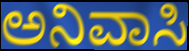
ಅನಿವಾಸಿ